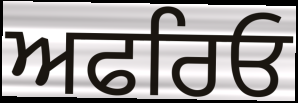
ਅਫਰਿਓ